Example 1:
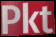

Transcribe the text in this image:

Pkt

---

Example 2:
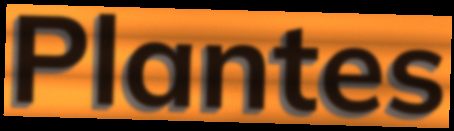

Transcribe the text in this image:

Plantes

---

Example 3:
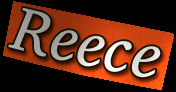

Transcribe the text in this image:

Reece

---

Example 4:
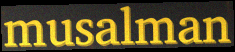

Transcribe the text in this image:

musalman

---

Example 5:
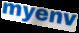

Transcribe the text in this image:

myenv